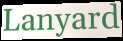
Lanyard